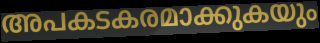
അപകടകരമാക്കുകയും